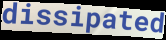
dissipated